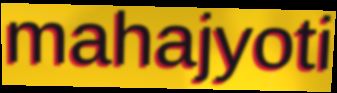
mahajyoti